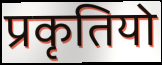
प्रकृतियो